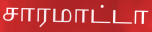
சாரமாட்டா